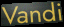
Vandi